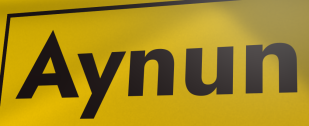
Aynun